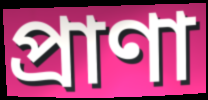
প্রাণা